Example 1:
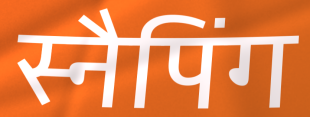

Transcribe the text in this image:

स्नैपिंग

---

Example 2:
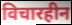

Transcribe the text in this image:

विचारहीन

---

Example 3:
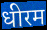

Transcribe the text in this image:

धीरम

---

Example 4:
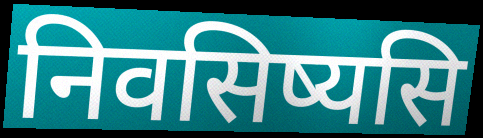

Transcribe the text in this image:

निवसिष्यसि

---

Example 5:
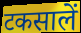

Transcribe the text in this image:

टकसालें